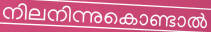
നിലനിന്നുകൊണ്ടാൽ